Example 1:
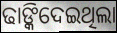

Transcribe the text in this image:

ଢାଙ୍କିଦେଇଥିଲା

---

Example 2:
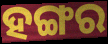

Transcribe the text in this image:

ହଙ୍ଗର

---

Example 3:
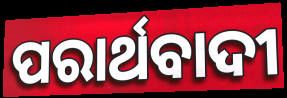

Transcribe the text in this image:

ପରାର୍ଥବାଦୀ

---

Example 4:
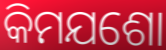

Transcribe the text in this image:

କିମଯଶୋ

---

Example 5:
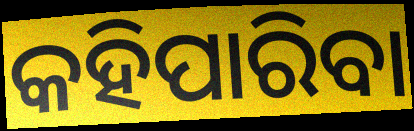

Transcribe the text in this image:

କହିପାରିବା